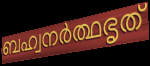
ബഹ്വനർത്ഥഭൃത്